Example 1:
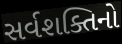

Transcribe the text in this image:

સર્વશક્તિનો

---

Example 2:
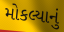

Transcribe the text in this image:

મોકલ્યાનું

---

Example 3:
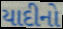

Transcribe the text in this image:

યાદીનો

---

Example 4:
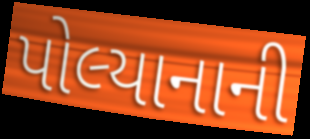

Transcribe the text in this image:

પોલ્યાનાની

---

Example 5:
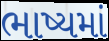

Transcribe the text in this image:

ભાષ્યમાં